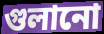
গুলানো